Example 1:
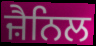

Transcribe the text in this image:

ਜ਼ੈਨਿਲ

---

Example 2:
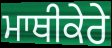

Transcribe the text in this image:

ਮਾਥੀਕੇਰੇ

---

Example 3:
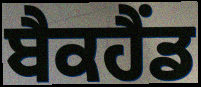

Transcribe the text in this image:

ਬੈਕਹੈਂਡ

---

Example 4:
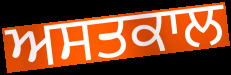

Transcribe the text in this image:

ਅਸਤਕਾਲ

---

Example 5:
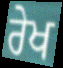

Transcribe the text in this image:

ਰੇਖ